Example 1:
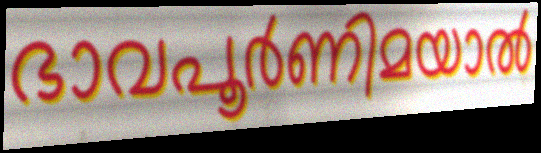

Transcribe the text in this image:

ഭാവപൂർണിമയാൽ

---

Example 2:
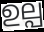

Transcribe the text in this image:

ഉല്പ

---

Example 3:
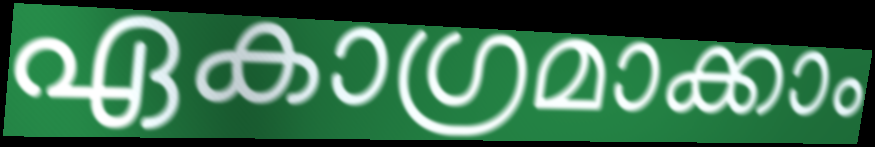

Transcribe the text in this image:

ഏകാഗ്രമാക്കാം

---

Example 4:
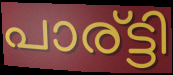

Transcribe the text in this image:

പാര്ട്ടി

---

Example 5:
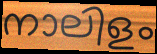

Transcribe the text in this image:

നാലിളം